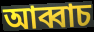
আব্বাচ